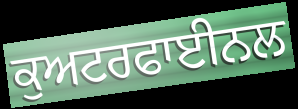
ਕੁਅਟਰਫਾਈਨਲ